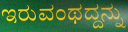
ಇರುವಂಥದ್ದನ್ನು